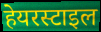
हेयरस्टाइल